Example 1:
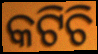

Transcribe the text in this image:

କଟିଚି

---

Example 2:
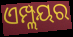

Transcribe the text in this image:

ଏମ୍ପ୍ଲୟର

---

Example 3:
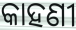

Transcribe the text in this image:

କାହଣୀ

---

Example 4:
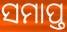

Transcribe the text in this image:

ସମାପ୍ତ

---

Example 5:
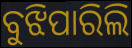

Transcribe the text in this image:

ବୁଝିପାରିଲି